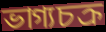
ভাগ্যচক্র